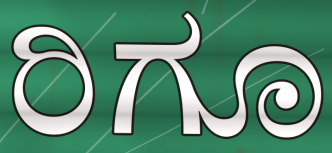
ರಿಗೂ